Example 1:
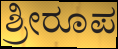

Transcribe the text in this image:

ಶ್ರೀರೂಪ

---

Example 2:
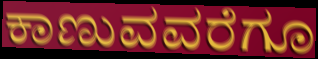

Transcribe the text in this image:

ಕಾಣುವವರೆಗೂ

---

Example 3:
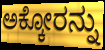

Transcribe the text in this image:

ಅಕ್ಕೋರನ್ನು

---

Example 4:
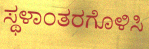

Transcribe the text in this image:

ಸ್ಥಳಾಂತರಗೊಳಿಸಿ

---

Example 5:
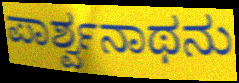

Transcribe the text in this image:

ಪಾರ್ಶ್ವನಾಥನು